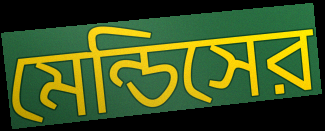
মেন্ডিসের